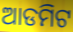
ଆଡମିଟ